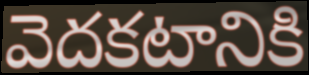
వెదకటానికి